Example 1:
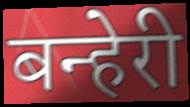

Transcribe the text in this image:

बन्हेरी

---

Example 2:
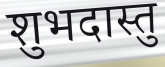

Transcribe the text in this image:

शुभदास्तु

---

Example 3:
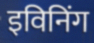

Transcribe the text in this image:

इविनिंग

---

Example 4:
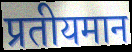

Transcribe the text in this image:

प्रतीयमान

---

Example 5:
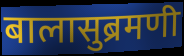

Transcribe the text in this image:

बालासुब्रमणी